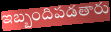
ఇబ్బందిపడతారు